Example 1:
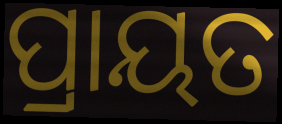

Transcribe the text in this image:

ପ୍ରାୟତ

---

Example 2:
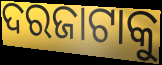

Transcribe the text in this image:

ଦରଜାଟାକୁ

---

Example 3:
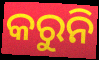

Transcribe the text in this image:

କରୁନି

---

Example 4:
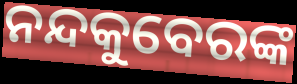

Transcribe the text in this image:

ନନ୍ଦକୁବେରଙ୍କ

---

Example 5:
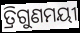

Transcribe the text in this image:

ତ୍ରିଗୁଣମୟୀ